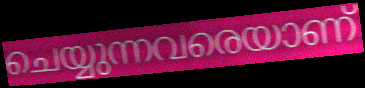
ചെയ്യുന്നവരെയാണ്